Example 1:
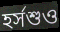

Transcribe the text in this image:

হর্সশুও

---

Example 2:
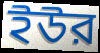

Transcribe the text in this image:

ইউর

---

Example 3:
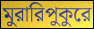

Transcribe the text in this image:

মুরারিপুকুরে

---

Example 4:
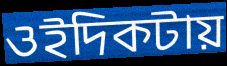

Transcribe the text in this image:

ওইদিকটায়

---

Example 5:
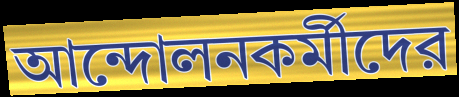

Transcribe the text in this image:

আন্দোলনকর্মীদের